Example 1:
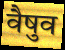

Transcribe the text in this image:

वैषुव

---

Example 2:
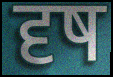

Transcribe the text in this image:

दृष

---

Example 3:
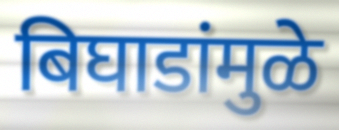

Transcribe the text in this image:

बिघाडांमुळे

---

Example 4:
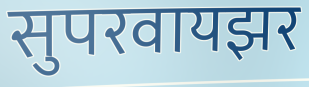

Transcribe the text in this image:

सुपरवायझर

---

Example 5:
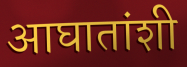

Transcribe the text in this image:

आघातांशी